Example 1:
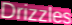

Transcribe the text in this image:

Drizzles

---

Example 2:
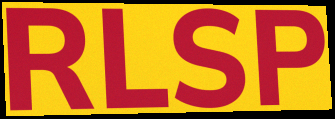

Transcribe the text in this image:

RLSP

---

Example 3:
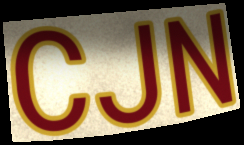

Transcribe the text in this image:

CJN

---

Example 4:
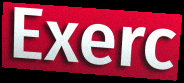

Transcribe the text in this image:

Exerc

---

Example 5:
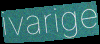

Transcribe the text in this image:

ivarige